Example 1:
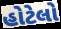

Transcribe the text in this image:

હોટેલો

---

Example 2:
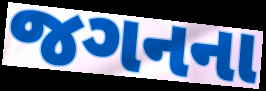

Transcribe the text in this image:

જગનના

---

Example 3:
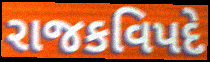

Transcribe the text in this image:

રાજકવિપદે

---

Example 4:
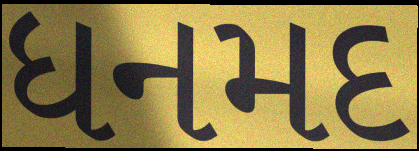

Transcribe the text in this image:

ધનમદ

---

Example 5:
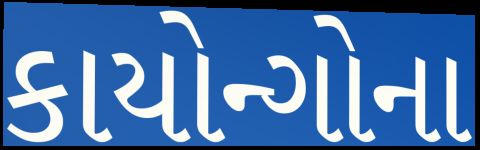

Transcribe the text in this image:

કાયોન્ગોના